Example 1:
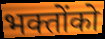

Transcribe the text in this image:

भक्तोंको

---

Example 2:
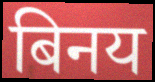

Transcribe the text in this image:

बिनय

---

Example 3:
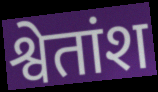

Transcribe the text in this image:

श्वेतांश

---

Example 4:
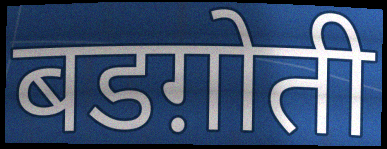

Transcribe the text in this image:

बडग़ोती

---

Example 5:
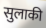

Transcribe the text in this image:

सुलाकी